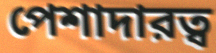
পেশাদারত্ব